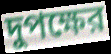
দুপক্ষের